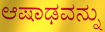
ಆಷಾಢವನ್ನು